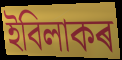
ইবিলাকৰ